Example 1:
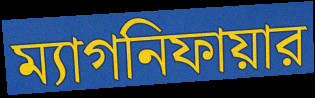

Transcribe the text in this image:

ম্যাগনিফায়ার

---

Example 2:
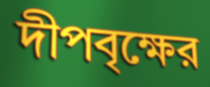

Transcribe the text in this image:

দীপবৃক্ষের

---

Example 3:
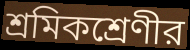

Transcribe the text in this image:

শ্রমিকশ্রেণীর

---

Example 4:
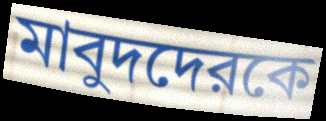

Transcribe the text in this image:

মাবুদদেরকে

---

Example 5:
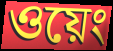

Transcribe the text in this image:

ওয়েং